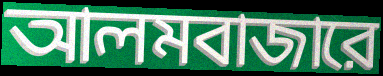
আলমবাজারে